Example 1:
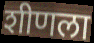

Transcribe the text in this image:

शीणला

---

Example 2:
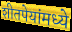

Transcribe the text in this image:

शीतपेयांमध्ये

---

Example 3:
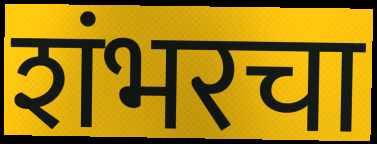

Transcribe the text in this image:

शंभरचा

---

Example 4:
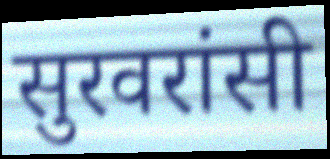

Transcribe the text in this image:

सुरवरांसी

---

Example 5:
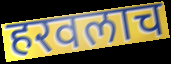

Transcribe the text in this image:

हरवलाच